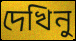
দেখিনু